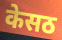
केसठ